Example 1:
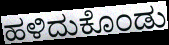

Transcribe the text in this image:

ಹಳಿದುಕೊಂಡು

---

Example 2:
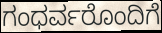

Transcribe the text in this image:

ಗಂಧರ್ವರೊಂದಿಗೆ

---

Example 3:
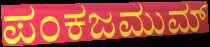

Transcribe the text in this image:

ಪಂಕಜಮುಮ್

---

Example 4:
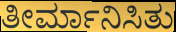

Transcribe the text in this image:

ತೀರ್ಮಾನಿಸಿತು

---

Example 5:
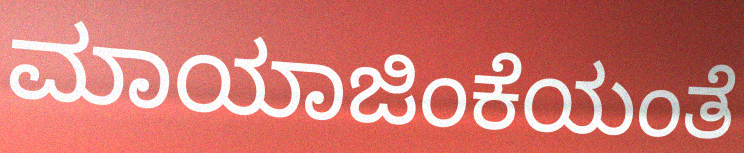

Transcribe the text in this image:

ಮಾಯಾಜಿಂಕೆಯಂತೆ